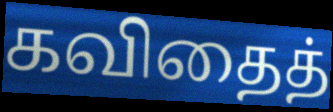
கவிதைத்